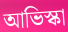
আভিস্কা